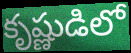
కృష్ణుడిలో